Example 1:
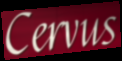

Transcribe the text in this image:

Cervus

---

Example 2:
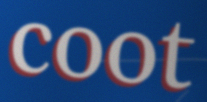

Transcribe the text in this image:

coot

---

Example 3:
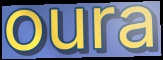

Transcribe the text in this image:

oura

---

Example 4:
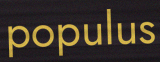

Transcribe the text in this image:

populus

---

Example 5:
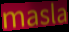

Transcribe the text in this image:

masla